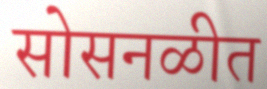
सोसनळीत